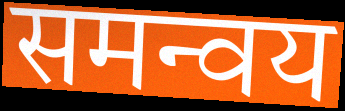
समन्वय